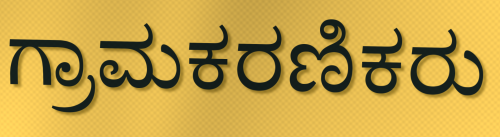
ಗ್ರಾಮಕರಣಿಕರು